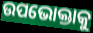
ଉପଭୋକ୍ତାକୁ